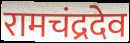
रामचंद्रदेव